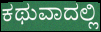
ಕಥುವಾದಲ್ಲಿ